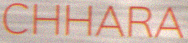
CHHARA